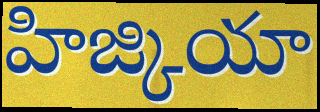
హిజ్కియా